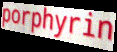
porphyrin